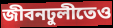
জীবনঢুলীতেও